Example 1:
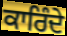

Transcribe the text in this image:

ਕਾਰਿੰਦੇ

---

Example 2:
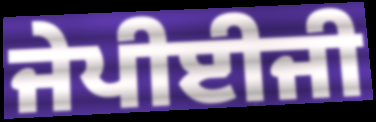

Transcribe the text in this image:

ਜੇਪੀਈਜੀ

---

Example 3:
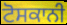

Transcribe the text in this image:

ਟੋਸਕਾਨੀ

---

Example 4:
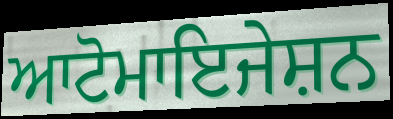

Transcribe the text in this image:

ਆਟੋਮਾਇਜੇਸ਼ਨ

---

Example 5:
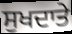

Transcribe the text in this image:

ਸੁਖਦਾਤੇ